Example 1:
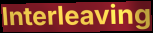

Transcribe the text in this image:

Interleaving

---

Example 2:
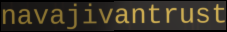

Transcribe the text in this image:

navajivantrust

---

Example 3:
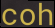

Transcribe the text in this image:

coh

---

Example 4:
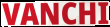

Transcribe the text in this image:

VANCHI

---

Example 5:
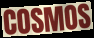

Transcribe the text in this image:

COSMOS